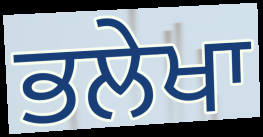
ਭਲੇਖਾ